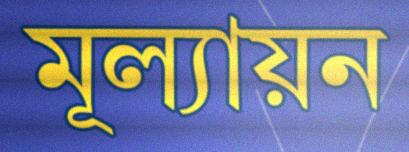
মূল্যায়ন